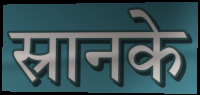
स्रानके